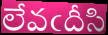
లేవఁదీసి